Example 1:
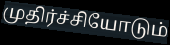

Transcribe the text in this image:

முதிர்ச்சியோடும்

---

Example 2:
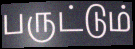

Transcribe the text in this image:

பருட்டும்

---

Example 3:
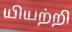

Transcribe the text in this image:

யியற்றி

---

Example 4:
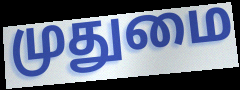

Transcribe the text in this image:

முதுமை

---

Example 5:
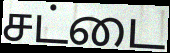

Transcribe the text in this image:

சட்டை